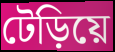
টেড়িয়ে